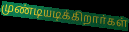
முண்டியடிக்கிறார்கள்